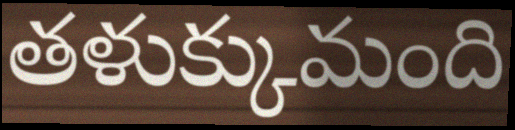
తళుక్కుమంది